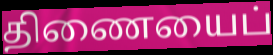
திணையைப்